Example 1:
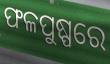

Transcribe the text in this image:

ଫଳପୁଷ୍ପରେ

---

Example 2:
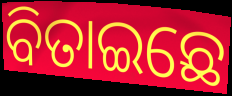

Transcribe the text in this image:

ବିତାଇଛେ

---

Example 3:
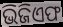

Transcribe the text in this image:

ଭିଜିଏଫ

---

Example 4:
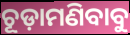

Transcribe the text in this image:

ଚୂଡ଼ାମଣିବାବୁ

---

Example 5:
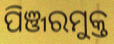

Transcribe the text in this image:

ପିଞ୍ଜରମୁକ୍ତ